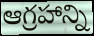
ఆగ్రహాన్ని